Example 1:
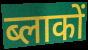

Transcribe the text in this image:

ब्लाकों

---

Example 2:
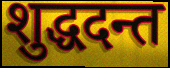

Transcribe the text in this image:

शुद्धदन्त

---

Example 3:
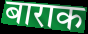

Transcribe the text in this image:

बाराक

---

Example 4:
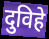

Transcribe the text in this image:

दुविहे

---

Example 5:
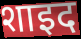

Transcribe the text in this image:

शाइद